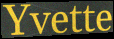
Yvette